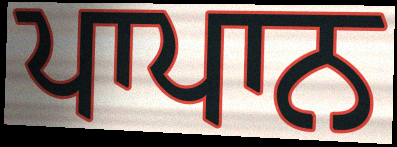
ਪਾਪਾਨ